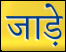
जाड़े